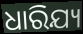
ଧାରିଯ୍ୟ